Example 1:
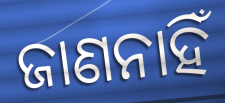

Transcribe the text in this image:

ଜାଣନାହିଁ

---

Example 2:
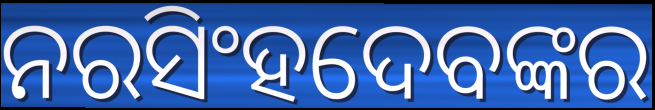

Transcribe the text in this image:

ନରସିଂହଦେବଙ୍କର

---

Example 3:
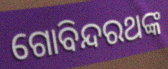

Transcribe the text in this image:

ଗୋବିନ୍ଦରଥଙ୍କ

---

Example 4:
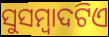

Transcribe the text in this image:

ସୁସମ୍ବାଦଟିଏ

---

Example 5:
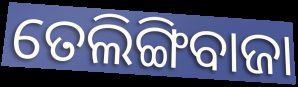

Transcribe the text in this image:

ତେଲିଙ୍ଗିବାଜା